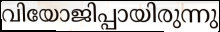
വിയോജിപ്പായിരുന്നു